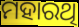
ମହାରଥି